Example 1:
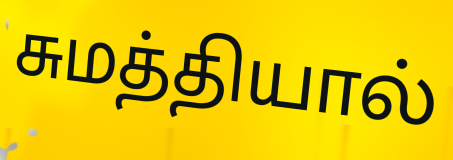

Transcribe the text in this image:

சுமத்தியால்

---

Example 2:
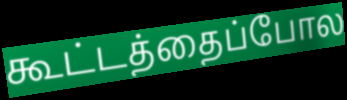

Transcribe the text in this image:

கூட்டத்தைப்போல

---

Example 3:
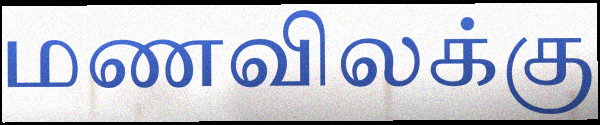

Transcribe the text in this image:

மணவிலக்கு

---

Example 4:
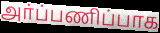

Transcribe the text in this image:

அர்ப்பணிப்பாக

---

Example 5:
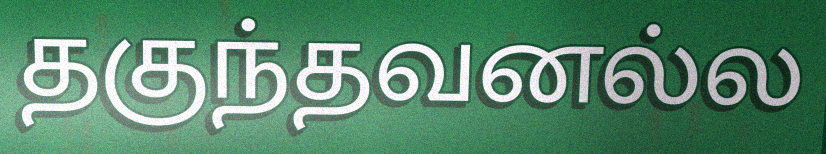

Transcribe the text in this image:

தகுந்தவனல்ல